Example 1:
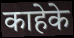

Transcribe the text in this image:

काहेके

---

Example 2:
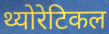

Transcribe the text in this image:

थ्योरेटिकल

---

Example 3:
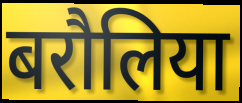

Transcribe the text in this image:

बरौलिया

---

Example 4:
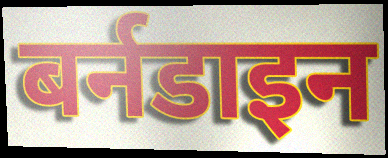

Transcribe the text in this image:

बर्नडाइन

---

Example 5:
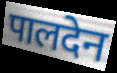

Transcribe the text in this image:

पालदेन